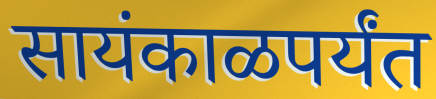
सायंकाळपर्यंत